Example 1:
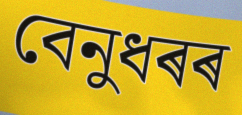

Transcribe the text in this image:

বেনুধৰৰ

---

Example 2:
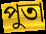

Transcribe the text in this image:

পুতা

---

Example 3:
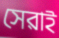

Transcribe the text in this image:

সেৱাই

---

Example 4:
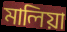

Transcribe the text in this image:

মালিয়া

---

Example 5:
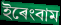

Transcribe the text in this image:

ইৰেংবাম